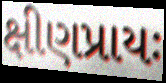
ક્ષીણપ્રાયઃ